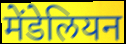
मेंडेलियन